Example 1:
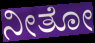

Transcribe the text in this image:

ನೀತೋ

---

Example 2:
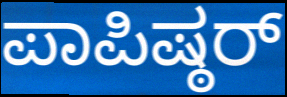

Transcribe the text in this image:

ಪಾಪಿಷ್ಠರ್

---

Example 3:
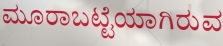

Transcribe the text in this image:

ಮೂರಾಬಟ್ಟೆಯಾಗಿರುವ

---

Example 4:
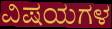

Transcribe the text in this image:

ವಿಷಯಗಳ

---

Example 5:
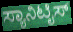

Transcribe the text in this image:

ಸ್ಯಾನಿಟೈಸ್